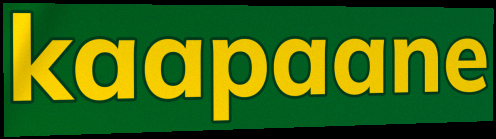
kaapaane